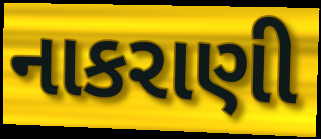
નાકરાણી